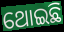
ଥୋଇଛି